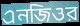
এনজিওর